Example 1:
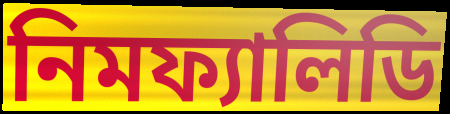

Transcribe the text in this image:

নিমফ্যালিডি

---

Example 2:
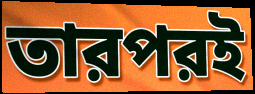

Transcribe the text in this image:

তারপরই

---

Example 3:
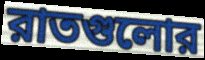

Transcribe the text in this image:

রাতগুলোর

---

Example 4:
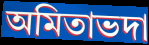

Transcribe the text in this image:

অমিতাভদা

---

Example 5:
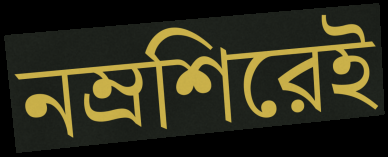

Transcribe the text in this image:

নম্রশিরেই